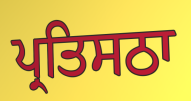
ਪ੍ਰਤਿਸਠਾ